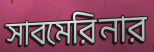
সাবমেরিনার